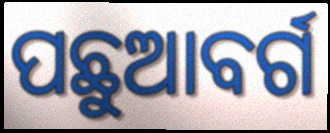
ପଛୁଆବର୍ଗ